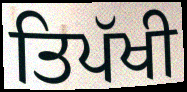
ਤਿਪੱਖੀ